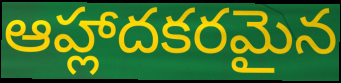
ఆహ్లాదకరమైన